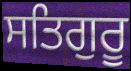
ਸਤਿਗੁਰੂ